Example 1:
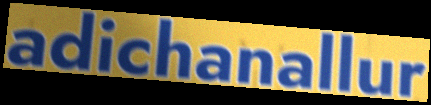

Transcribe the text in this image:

adichanallur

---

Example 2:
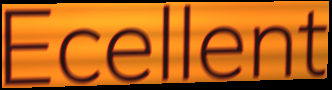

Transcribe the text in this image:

Ecellent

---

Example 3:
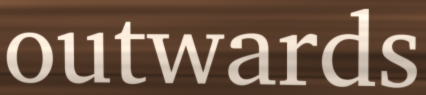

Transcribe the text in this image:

outwards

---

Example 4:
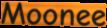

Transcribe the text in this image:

Moonee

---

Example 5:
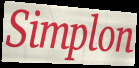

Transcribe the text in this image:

Simplon